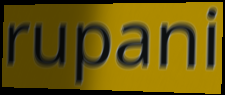
rupani